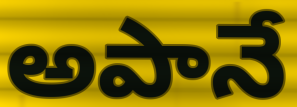
అపానే